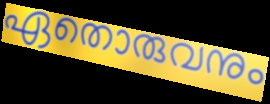
ഏതൊരുവനും